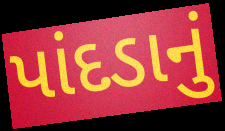
પાંદડાનું